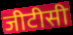
जीटीसी